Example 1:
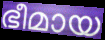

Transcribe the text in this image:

ഭീമായ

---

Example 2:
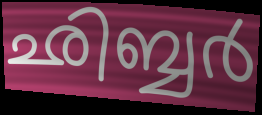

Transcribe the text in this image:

ഛിബ്ബർ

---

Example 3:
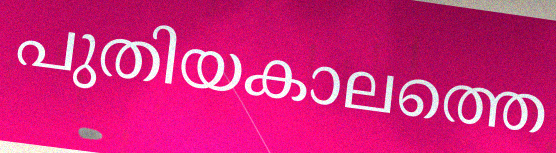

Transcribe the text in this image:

പുതിയകാലത്തെ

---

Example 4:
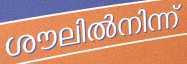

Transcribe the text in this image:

ശൗലിൽനിന്ന്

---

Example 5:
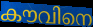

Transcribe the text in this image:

കൗവിനെ